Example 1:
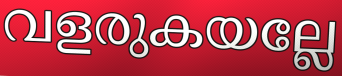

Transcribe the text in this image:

വളരുകയല്ലേ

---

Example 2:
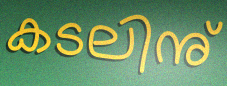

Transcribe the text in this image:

കടലിനു്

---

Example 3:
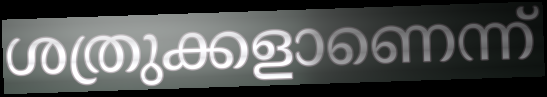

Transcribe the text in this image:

ശത്രുക്കളാണെന്ന്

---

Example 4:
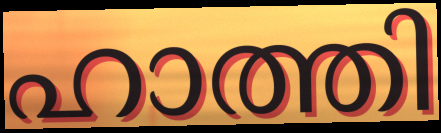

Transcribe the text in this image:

ഹാത്തി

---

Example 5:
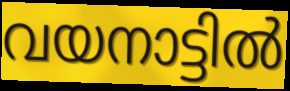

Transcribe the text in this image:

വയനാട്ടിൽ